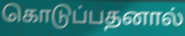
கொடுப்பதனால்